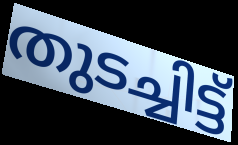
തുടച്ചിട്ട്